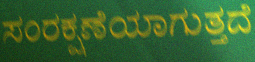
ಸಂರಕ್ಷಣೆಯಾಗುತ್ತದೆ